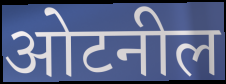
ओटनील